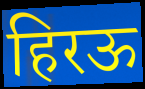
हिरऊ